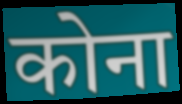
कोना